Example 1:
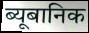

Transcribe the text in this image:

ब्यूबानिक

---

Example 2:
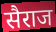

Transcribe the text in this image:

सैराज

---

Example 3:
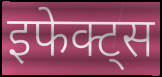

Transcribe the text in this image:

इफेक्ट्स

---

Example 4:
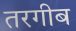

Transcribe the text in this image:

तरगीब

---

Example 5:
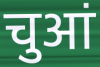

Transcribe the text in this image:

चुआं